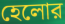
হেলোর